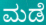
ಮಡೆ